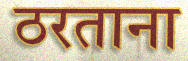
ठरताना